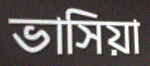
ভাসিয়া